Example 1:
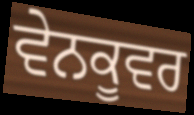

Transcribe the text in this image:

ਵੇਨਕੂਵਰ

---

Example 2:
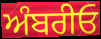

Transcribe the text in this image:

ਅੰਬਰੀਓ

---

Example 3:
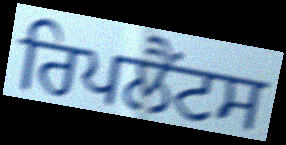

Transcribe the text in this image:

ਰਿਪਲੈਂਟਸ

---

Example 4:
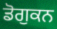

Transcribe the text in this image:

ਡੋਗੁਕਨ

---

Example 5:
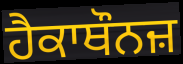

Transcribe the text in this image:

ਹੈਕਾਥੌਨਜ਼